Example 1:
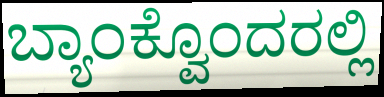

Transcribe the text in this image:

ಬ್ಯಾಂಕ್ವೊಂದರಲ್ಲಿ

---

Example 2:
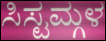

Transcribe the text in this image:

ಸಿಸ್ಟಮ್ಗಳ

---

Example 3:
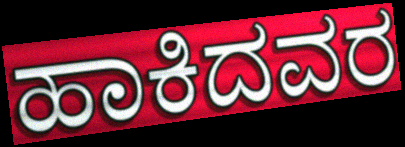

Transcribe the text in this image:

ಹಾಕಿದವರ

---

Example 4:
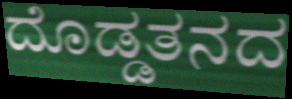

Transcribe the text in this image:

ದೊಡ್ಡತನದ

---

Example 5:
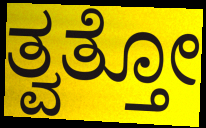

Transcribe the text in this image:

ತ್ವತ್ತೋ